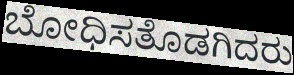
ಬೋಧಿಸತೊಡಗಿದರು